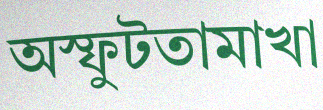
অস্ফুটতামাখা